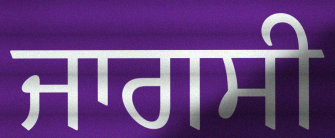
ਜਾਗਸੀ